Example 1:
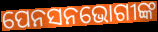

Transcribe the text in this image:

ପେନସନଭୋଗୀଙ୍କ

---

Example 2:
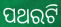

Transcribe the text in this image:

ପଥରଟି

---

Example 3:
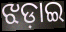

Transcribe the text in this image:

ଝଡ଼ାଇ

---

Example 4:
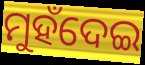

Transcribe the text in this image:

ମୁହଁଦେଇ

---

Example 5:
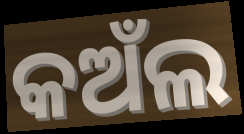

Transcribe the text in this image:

କଅଁଲ